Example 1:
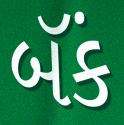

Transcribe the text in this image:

બૅંક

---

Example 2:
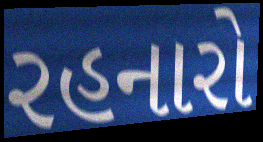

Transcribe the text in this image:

રહનારો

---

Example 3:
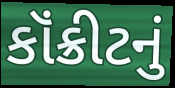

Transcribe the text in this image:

કૉંક્રીટનું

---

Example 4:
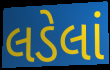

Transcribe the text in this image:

લડેલાં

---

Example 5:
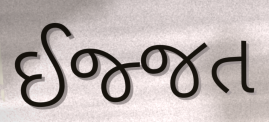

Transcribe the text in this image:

ઈજ્જત